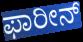
ಫಾರೀನ್